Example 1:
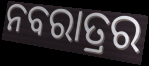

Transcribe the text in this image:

ନବରାତ୍ରର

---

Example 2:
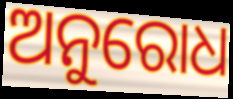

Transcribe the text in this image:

ଅନୁରୋଧ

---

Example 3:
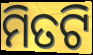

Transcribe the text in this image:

ମିତଟି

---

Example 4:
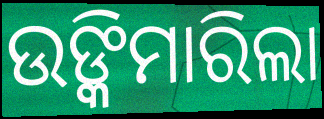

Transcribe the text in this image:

ଉଙ୍କିମାରିଲା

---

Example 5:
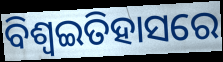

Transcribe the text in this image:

ବିଶ୍ଵଇତିହାସରେ